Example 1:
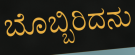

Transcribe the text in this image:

ಬೊಬ್ಬಿರಿದನು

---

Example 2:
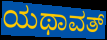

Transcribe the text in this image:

ಯಥಾವತ್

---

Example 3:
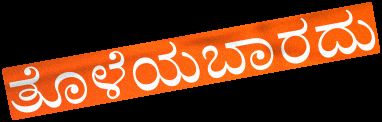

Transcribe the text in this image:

ತೊಳೆಯಬಾರದು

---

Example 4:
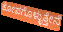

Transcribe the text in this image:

ಕೋಪಗೊಳ್ಳುತ್ತೇನೆ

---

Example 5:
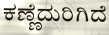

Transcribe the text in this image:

ಕಣ್ಣೆದುರಿಗಿದೆ